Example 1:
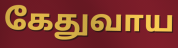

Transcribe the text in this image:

கேதுவாய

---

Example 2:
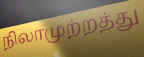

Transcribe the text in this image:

நிலாமுற்றத்து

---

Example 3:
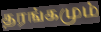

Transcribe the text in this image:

தரங்கமும்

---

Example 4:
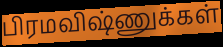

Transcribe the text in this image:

பிரமவிஷ்ணுக்கள்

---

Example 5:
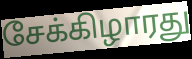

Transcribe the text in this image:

சேக்கிழாரது